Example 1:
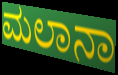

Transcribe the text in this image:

ಮಲಾನಾ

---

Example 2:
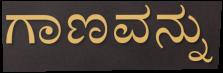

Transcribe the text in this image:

ಗಾಣವನ್ನು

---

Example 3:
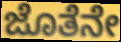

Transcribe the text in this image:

ಜೊತೆನೇ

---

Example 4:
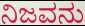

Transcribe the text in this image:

ನಿಜವನು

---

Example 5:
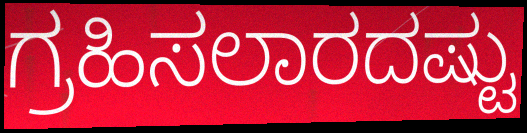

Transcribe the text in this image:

ಗ್ರಹಿಸಲಾರದಷ್ಟು